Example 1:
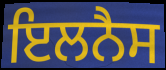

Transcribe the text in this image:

ਇਲਨੈਸ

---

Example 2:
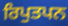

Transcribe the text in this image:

ਰਿਪੁਤਪਨ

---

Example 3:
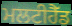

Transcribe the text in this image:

ਮਲਟੀਹੈੱਡ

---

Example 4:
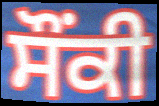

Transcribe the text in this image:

ਸੌਂਕੀ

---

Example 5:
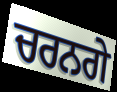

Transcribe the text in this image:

ਚਰਨਗੇ